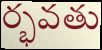
ర్భవతు